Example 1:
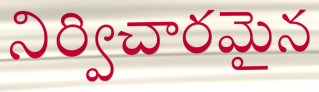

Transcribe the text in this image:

నిర్విచారమైన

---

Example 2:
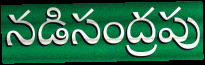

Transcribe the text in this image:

నడిసంద్రపు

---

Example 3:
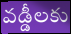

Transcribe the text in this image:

వడ్డీలకు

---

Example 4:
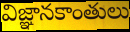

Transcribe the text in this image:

విజ్ఞానకాంతులు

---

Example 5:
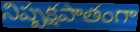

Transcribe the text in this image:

నిష్పక్షపాతంగా